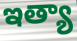
ఇత్యా